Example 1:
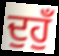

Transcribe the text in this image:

ਦੁਹੁਁ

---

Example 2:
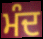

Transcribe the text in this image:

ਮੰਦ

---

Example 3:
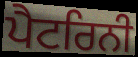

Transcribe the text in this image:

ਪੈਟਰਿਨੀ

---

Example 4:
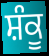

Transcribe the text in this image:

ਸ਼ੰਕੂ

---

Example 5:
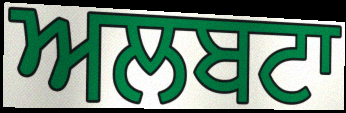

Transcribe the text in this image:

ਅਲਬਟਾ